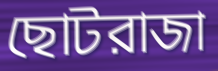
ছোটরাজা